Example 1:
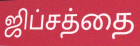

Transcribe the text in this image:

ஜிப்சத்தை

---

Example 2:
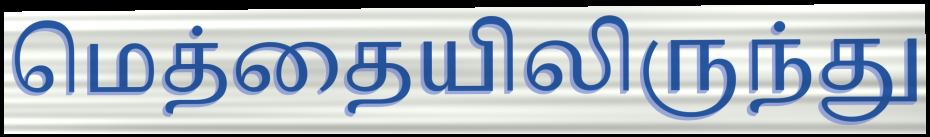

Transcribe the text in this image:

மெத்தையிலிருந்து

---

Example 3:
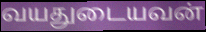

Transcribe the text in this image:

வயதுடையவன்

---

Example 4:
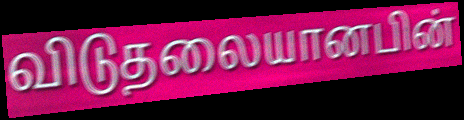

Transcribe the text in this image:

விடுதலையானபின்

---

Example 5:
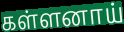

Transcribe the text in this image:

கள்ளனாய்